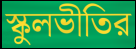
স্কুলভীতির